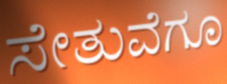
ಸೇತುವೆಗೂ